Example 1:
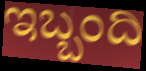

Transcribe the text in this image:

ಇಬ್ಬಂದಿ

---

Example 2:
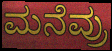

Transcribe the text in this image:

ಮನೆವ್ರು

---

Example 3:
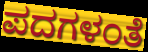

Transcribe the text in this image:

ಪದಗಳಂತೆ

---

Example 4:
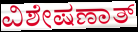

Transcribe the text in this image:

ವಿಶೇಷಣಾತ್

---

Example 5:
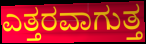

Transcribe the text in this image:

ಎತ್ತರವಾಗುತ್ತ